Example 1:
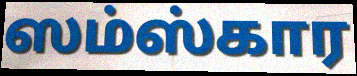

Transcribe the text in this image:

ஸம்ஸ்கார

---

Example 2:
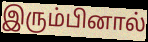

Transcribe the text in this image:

இரும்பினால்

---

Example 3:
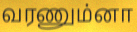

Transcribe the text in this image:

வரணும்னா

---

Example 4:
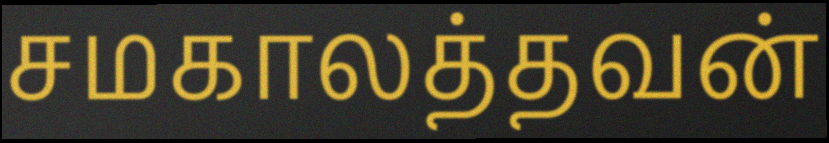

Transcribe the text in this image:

சமகாலத்தவன்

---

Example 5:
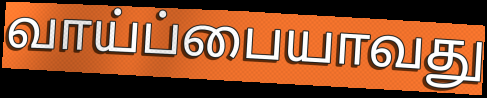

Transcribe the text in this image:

வாய்ப்பையாவது